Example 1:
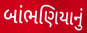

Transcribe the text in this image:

બાંભણિયાનું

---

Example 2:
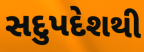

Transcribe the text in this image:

સદુપદેશથી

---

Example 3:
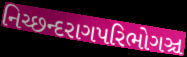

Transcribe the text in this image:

નિચ્છન્દરાગપરિભોગઞ્ચ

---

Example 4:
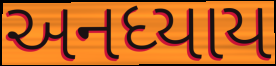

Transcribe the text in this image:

અનધ્યાય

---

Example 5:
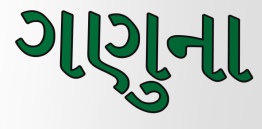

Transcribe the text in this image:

ગણુના